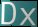
Dx